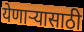
येणाऱ्यासाठी